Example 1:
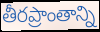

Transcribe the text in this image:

తీరప్రాంతాన్ని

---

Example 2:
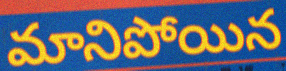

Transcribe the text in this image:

మానిపోయిన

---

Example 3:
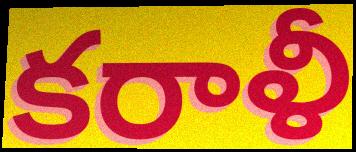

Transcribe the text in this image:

కరాళీ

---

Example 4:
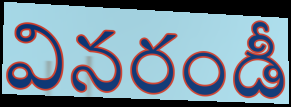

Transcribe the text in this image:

వినరండీ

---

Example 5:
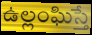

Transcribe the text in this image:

ఉల్లంఘిస్తే